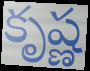
కృష్ణ